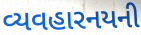
વ્યવહારનયની